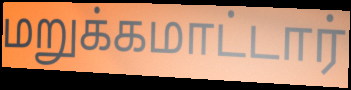
மறுக்கமாட்டார்